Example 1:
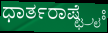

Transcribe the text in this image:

ಧಾರ್ತರಾಷ್ಟ್ರೈಃ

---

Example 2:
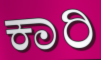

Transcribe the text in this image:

ಕಾರಿ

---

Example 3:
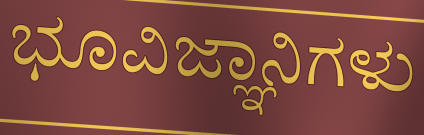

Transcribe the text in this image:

ಭೂವಿಜ್ಞಾನಿಗಳು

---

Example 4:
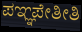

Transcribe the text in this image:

ಪಞ್ಞಪೇತೀತಿ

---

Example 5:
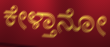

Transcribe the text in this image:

ಕೇಳ್ತಾನೋ